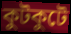
কুটকুটে